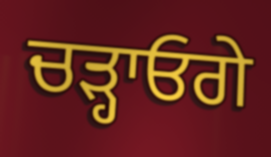
ਚੜ੍ਹਾਓਗੇ